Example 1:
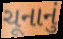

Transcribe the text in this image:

ચૂનાનું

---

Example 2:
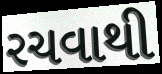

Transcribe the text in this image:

રચવાથી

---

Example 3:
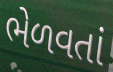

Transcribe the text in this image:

ભેળવતાં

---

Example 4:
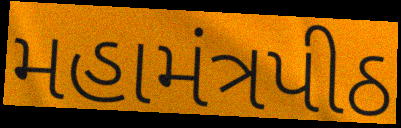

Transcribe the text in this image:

મહામંત્રપીઠ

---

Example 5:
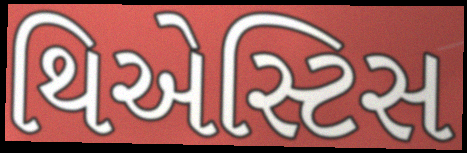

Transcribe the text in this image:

થિએસ્ટિસ